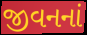
જીવનનાં